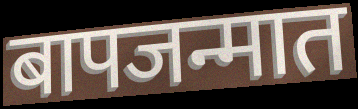
बापजन्मात